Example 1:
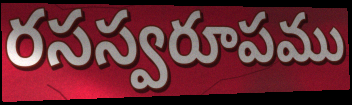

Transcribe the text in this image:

రసస్వరూపము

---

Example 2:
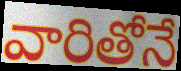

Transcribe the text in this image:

వారితోనే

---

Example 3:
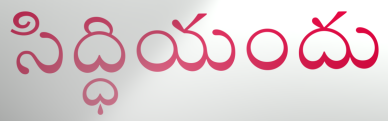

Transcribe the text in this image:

సిద్ధియందు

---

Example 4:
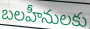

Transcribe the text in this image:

బలహీనులకు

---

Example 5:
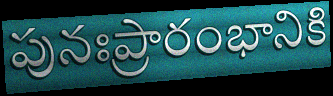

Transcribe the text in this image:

పునఃప్రారంభానికి